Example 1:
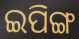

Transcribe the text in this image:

ଇପିଙ୍ଗ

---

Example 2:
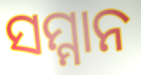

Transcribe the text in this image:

ସମ୍ମାନ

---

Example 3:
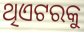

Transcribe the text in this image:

ଥିଏଟରକୁ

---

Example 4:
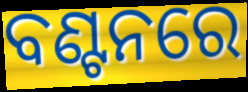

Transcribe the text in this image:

ବଣ୍ଟନରେ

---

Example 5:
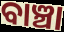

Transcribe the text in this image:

ବାଞ୍ଚା